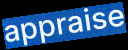
appraise